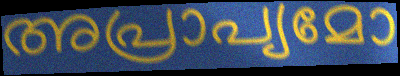
അപ്രാപ്യമോ